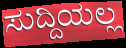
ಸುದ್ದಿಯಲ್ಲ